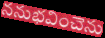
ననుభవించెను